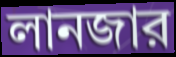
লানজার